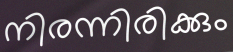
നിരന്നിരിക്കും